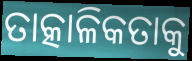
ତାତ୍କାଳିକତାକୁ